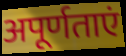
अपूर्णताएं